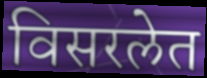
विसरलेत